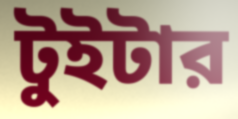
টুইটার